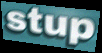
stup